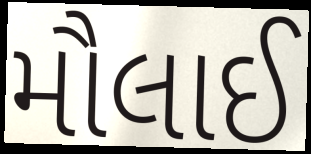
મૌલાઈ